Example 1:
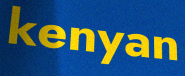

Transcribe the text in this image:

kenyan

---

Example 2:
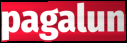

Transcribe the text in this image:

pagalun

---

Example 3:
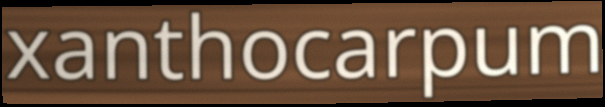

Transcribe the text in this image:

xanthocarpum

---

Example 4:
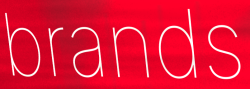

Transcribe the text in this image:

brands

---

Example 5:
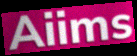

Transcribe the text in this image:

Aiims